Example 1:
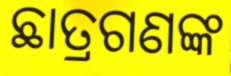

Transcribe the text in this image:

ଛାତ୍ରଗଣଙ୍କ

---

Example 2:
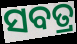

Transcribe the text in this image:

ସବତ୍ର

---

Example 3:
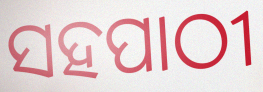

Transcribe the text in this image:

ସହପାଠୀ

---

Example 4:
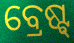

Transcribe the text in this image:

ବ୍ରେଷ୍ଟ୍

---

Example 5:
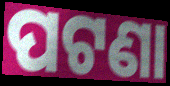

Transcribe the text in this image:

ପଟଣା